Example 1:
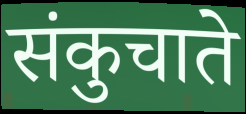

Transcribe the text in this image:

संकुचाते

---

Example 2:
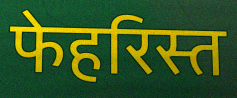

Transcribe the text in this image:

फेहरिस्त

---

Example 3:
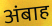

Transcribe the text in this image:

अंबाह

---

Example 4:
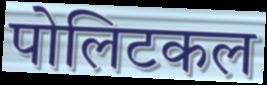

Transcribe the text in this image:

पोलिटकल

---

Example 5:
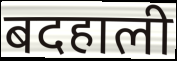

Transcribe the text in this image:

बदहाली